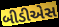
બીડીએસ